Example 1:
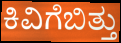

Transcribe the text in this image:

ಕಿವಿಗೆಬಿತ್ತು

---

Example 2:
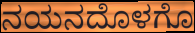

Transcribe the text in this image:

ನಯನದೊಳಗೊ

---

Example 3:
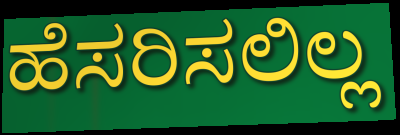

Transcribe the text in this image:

ಹೆಸರಿಸಲಿಲ್ಲ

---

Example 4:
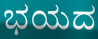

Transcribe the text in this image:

ಭಯದ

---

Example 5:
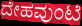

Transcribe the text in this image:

ದೇಹವುಂಟೆ